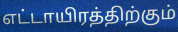
எட்டாயிரத்திற்கும்